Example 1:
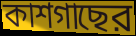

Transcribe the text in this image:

কাশগাছের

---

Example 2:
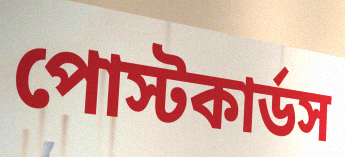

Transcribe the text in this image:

পোস্টকার্ডস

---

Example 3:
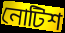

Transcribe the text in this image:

নোটিশ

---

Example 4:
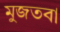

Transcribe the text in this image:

মুজতবা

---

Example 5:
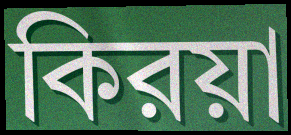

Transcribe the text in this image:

কিরয়া